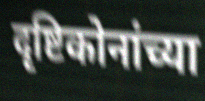
दृष्टिकोनांच्या